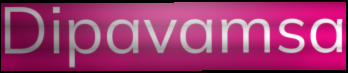
Dipavamsa